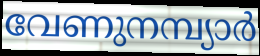
വേണുനമ്പ്യാർ